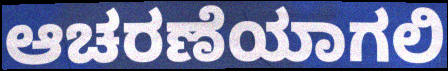
ಆಚರಣೆಯಾಗಲಿ